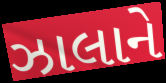
ઝાલાને